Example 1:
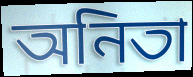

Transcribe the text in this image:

অনিতা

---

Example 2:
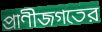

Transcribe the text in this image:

প্রাণীজগতের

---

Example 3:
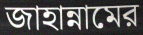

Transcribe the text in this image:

জাহান্নামের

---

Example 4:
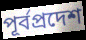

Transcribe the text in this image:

পূর্বপ্রদেশ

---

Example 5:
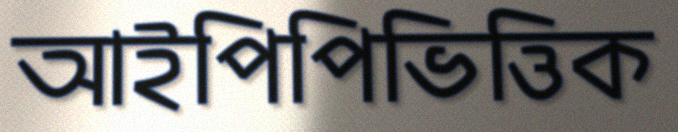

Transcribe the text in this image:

আইপিপিভিত্তিক